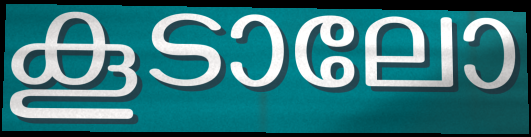
കൂടാലോ